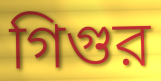
গিগুর